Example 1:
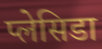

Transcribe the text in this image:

प्लेसिडा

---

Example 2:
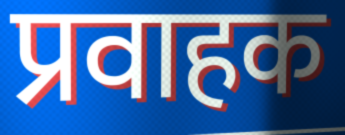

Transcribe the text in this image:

प्रवाहक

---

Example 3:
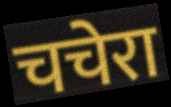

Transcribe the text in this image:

चचेरा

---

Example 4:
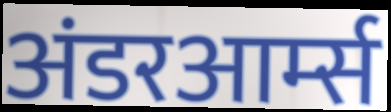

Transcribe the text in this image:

अंडरआर्म्‍स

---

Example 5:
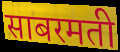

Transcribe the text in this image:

साबरमती